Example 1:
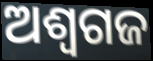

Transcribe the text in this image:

ଅଶ୍ୱଗଜ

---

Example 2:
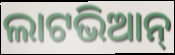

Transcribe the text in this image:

ଲାଟଭିଆନ୍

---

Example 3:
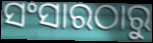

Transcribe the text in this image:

ସଂସାରଠାରୁ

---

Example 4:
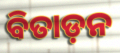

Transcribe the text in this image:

ବିତାଡ଼ନ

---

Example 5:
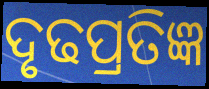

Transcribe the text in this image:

ଦୃଢପ୍ରତିଜ୍ଞ